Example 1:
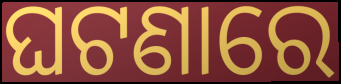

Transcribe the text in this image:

ଘଟଣାରେ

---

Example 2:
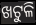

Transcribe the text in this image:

ଖଟୁଳି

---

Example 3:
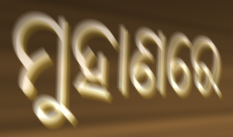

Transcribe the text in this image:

ମୁହାଣରେ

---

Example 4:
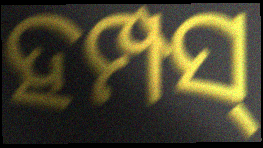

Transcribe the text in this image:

ହମ୍ପସ୍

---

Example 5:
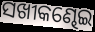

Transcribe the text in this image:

ସଖୀକଣ୍ଢେଇ